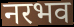
नरभव